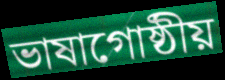
ভাষাগোষ্ঠীয়